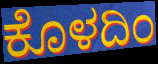
ಕೊಳದಿಂ